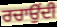
ਰਚਾਉਂਦੀ